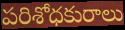
పరిశోధకురాలు